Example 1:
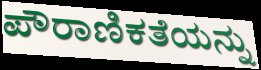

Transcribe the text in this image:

ಪೌರಾಣಿಕತೆಯನ್ನು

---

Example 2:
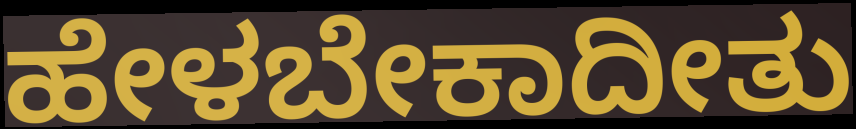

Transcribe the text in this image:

ಹೇಳಬೇಕಾದೀತು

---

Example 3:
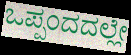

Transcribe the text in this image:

ಒಪ್ಪಂದದಲ್ಲೇ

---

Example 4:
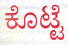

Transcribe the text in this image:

ಕೊಟ್ಟೆ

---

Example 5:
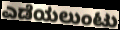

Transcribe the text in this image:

ಎಡೆಯಲುಂಟು